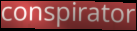
conspirator